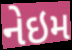
નેઇમ